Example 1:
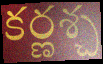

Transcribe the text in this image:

కర్ణశ్చ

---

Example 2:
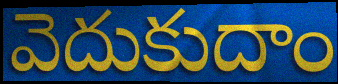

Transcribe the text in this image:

వెదుకుదాం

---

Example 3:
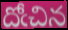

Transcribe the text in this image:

దోఁచిన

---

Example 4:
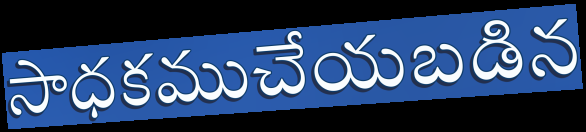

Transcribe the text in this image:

సాధకముచేయబడిన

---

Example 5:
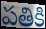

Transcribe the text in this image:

పతికి